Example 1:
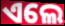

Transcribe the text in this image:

ଏଲେ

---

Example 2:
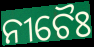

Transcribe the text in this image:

ନୀଚୈଃ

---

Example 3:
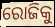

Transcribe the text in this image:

ରୋଜିକୁ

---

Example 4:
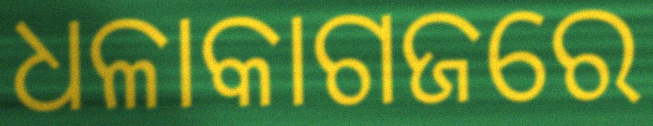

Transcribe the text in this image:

ଧଳାକାଗଜରେ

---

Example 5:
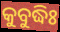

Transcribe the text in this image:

କୁବୁଦ୍ଧିଃ